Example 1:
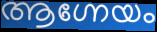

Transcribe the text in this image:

ആഗ്നേയം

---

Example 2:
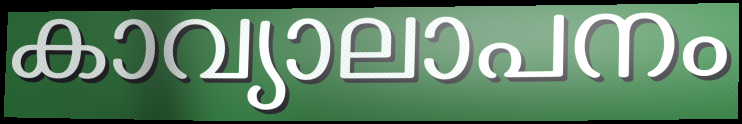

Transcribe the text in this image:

കാവ്യാലാപനം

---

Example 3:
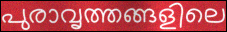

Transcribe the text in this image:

പുരാവൃത്തങ്ങളിലെ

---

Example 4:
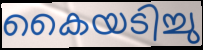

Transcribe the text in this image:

കൈയടിച്ചു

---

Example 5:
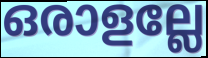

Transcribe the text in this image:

ഒരാളല്ലേ